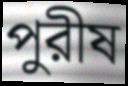
পুরীষ